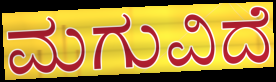
ಮಗುವಿದೆ